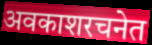
अवकाशरचनेत